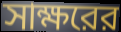
সাক্ষরের